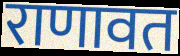
राणावत